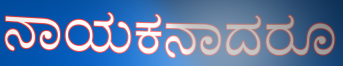
ನಾಯಕನಾದರೂ